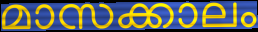
മാസക്കാലം